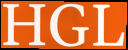
HGL